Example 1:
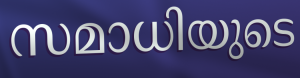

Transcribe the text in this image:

സമാധിയുടെ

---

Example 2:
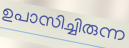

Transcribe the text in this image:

ഉപാസിച്ചിരുന്ന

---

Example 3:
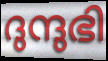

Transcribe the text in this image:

ദുന്ദുഭി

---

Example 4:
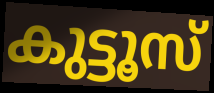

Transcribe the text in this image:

കുട്ടൂസ്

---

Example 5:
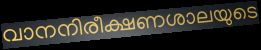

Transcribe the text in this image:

വാനനിരീക്ഷണശാലയുടെ